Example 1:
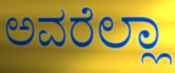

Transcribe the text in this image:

ಅವರೆಲ್ಲಾ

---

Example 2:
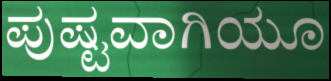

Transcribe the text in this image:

ಪುಷ್ಟವಾಗಿಯೂ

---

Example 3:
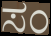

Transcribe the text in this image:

ಸಂ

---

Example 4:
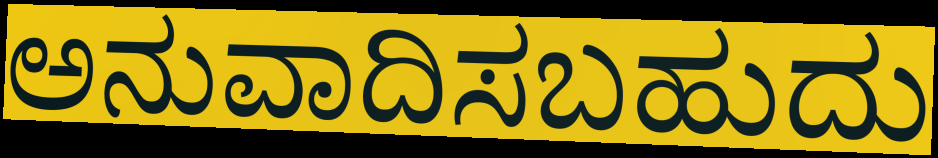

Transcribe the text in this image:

ಅನುವಾದಿಸಬಹುದು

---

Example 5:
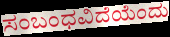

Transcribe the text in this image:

ಸಂಬಂಧವಿದೆಯೆಂದು